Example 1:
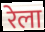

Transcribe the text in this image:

रेला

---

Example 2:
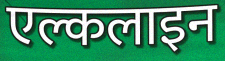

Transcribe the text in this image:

एल्कलाइन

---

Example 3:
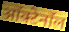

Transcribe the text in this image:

ऑक्टेनॉल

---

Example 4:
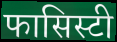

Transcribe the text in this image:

फासिस्टी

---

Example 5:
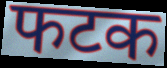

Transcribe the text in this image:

फटक